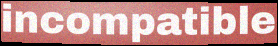
incompatible